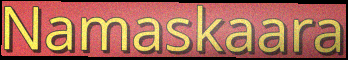
Namaskaara